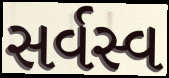
સર્વસ્વ